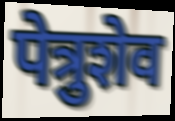
पेत्रुशेव